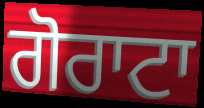
ਗੋਰਾਟਾ